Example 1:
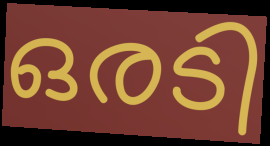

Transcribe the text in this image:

ഒരടി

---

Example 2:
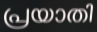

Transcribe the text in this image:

പ്രയാതി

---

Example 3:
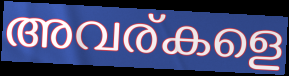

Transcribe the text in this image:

അവര്കളെ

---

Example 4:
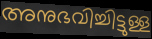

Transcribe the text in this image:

അനുഭവിച്ചിട്ടുള്ള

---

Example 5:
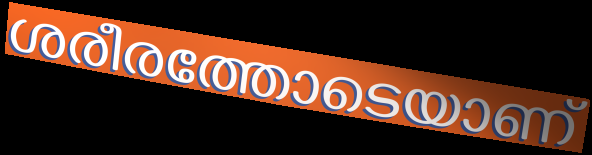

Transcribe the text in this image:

ശരീരത്തോടെയാണ്